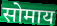
सोमाय